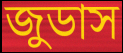
জুডাস